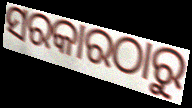
ସରକାରଠାରୁ